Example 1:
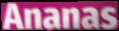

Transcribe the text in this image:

Ananas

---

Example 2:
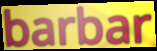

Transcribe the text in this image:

barbar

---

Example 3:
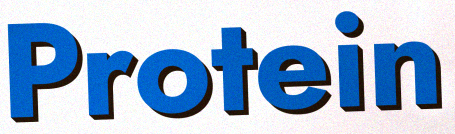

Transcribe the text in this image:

Protein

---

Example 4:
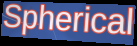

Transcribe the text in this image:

Spherical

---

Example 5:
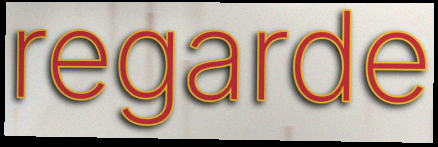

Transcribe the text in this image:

regarde